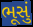
ભૂસું